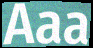
Aaa